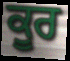
ਕੂਰ